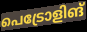
പെട്രോളിങ്